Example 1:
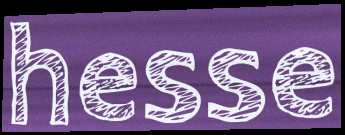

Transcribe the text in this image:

hesse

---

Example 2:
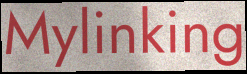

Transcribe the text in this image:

Mylinking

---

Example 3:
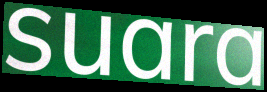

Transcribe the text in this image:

suara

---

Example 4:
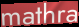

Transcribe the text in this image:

mathra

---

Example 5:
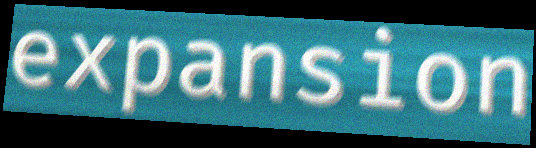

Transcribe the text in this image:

expansion